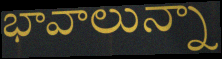
భావాలున్నా